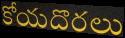
కోయదొరలు